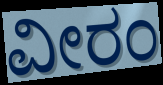
ವೀರಂ